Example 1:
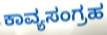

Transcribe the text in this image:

ಕಾವ್ಯಸಂಗ್ರಹ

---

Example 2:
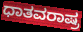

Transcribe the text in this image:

ಧಾತವರಾಷ್ರ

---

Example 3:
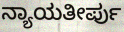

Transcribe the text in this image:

ನ್ಯಾಯತೀರ್ಪು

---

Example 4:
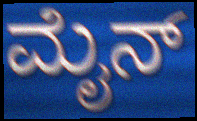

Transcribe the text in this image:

ಮೈನ್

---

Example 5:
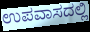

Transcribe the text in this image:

ಉಪವಾಸದಲ್ಲಿ